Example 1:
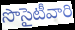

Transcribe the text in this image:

సొసైటీవారి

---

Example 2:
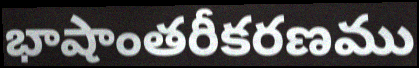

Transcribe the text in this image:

భాషాంతరీకరణము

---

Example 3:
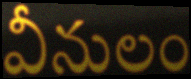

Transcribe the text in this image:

వీనులం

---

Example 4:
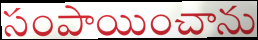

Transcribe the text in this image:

సంపాయించాను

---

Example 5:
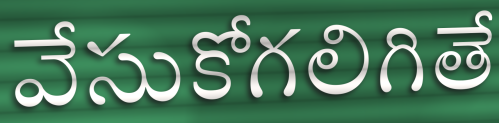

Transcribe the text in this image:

వేసుకోగలిగితే